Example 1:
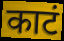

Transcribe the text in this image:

काटं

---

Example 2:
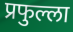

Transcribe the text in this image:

प्रफुल्ला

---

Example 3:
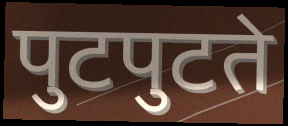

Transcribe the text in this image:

पुटपुटते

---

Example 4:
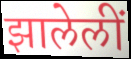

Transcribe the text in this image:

झालेलीं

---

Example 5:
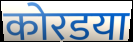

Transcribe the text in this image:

कोरडया